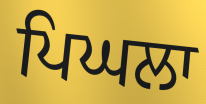
ਪਿਘਲਾ